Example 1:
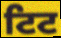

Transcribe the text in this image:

ਟਿਟ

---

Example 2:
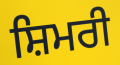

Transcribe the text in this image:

ਸ਼ਿਮਰੀ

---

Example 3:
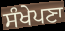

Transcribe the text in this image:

ਸੰਖੇਪਣਾ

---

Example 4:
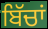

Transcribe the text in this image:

ਬਿੱਚਾਂ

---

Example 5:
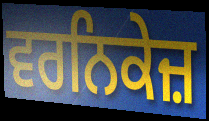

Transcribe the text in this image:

ਵਰਨਿਕੇਜ਼